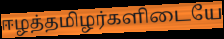
ஈழத்தமிழர்களிடையே